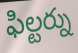
ఫిల్టర్ను